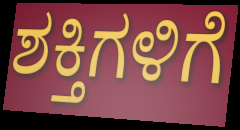
ಶಕ್ತಿಗಳಿಗೆ